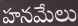
హనమేలు